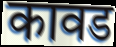
कावड